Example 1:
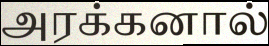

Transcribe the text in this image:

அரக்கனால்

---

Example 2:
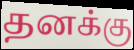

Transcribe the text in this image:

தனக்கு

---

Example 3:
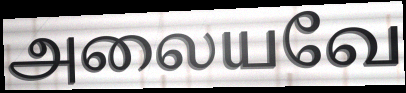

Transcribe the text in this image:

அலையவே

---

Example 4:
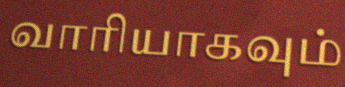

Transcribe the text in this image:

வாரியாகவும்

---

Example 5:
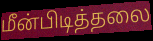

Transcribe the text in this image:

மீன்பிடித்தலை